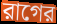
রাগের